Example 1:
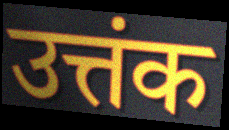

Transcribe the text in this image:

उत्तंक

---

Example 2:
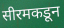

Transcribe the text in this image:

सीरमकडून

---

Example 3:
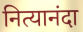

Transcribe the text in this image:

नित्यानंदा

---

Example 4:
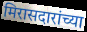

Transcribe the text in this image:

मिरासदारांच्या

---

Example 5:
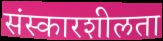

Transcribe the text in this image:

संस्कारशीलता